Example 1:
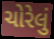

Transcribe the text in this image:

ચોરેલું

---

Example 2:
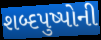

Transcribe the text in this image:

શબ્દપુષ્પોની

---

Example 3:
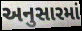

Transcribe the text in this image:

અનુસારમાં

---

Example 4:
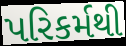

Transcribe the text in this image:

પરિકર્મથી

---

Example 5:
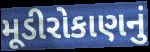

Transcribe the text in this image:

મૂડીરોકાણનું